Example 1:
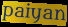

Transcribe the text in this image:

paiyan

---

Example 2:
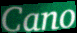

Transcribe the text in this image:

Cano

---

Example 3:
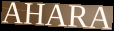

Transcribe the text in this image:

AHARA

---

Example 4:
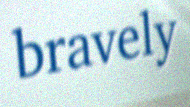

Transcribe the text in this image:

bravely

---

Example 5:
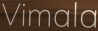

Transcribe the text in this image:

Vimala